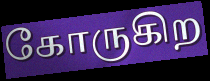
கோருகிற